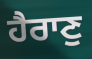
ਹੈਰਾਣੁ